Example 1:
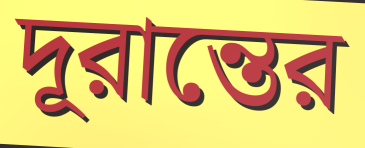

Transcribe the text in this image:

দূরান্তের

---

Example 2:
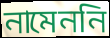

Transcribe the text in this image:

নামেননি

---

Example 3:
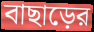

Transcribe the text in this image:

বাছাড়ের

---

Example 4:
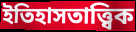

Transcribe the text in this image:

ইতিহাসতাত্ত্বিক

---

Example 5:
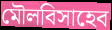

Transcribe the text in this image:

মৌলবিসাহেব